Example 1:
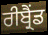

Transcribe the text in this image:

ਰੀਬ੍ਰੈਂਡ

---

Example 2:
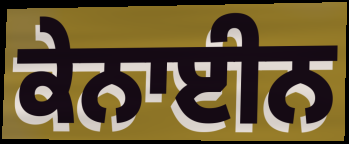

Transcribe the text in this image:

ਕੇਨਾਈਨ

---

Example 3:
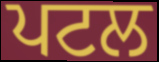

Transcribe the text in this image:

ਪਟਲ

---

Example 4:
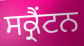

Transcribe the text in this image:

ਸਕ੍ਰੈਂਟਨ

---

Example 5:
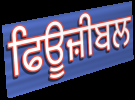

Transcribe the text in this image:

ਫਿਊਜ਼ੀਬਲ